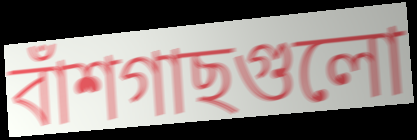
বাঁশগাছগুলো